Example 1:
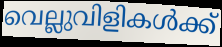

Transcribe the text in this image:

വെല്ലുവിളികൾക്ക്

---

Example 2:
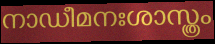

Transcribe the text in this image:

നാഡീമനഃശാസ്ത്രം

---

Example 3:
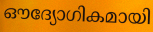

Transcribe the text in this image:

ഔദ്യോഗികമായി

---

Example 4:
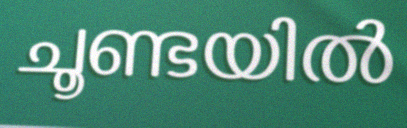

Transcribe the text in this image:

ചൂണ്ടയിൽ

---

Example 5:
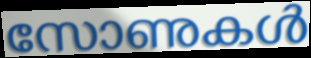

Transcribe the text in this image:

സോണുകൾ